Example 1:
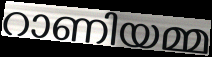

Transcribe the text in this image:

റാണിയമ്മ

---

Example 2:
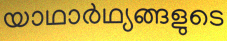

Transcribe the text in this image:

യാഥാർഥ്യങ്ങളുടെ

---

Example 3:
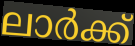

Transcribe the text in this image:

ലാർക്ക്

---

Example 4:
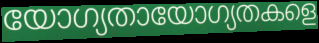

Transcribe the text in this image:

യോഗ്യതായോഗ്യതകളെ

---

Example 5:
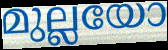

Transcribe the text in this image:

മുല്ലയോ